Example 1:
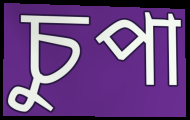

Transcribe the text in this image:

চুপা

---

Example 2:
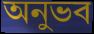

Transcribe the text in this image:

অনুভব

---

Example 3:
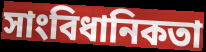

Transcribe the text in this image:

সাংবিধানিকতা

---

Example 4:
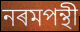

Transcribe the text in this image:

নৰমপন্থী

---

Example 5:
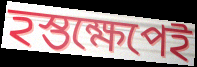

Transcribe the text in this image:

হস্তক্ষেপেই